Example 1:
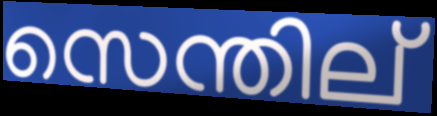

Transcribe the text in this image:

സെന്തില്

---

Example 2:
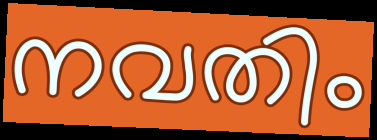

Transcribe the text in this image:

നവതിം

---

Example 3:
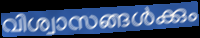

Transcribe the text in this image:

വിശ്വാസങ്ങൾക്കും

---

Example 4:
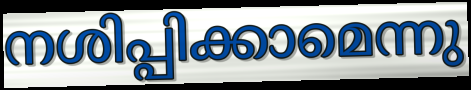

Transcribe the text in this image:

നശിപ്പിക്കാമെന്നു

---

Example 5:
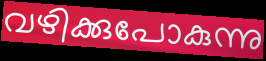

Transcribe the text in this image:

വഴിക്കുപോകുന്നു